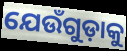
ଯେଉଁଗୁଡ଼ାକୁ